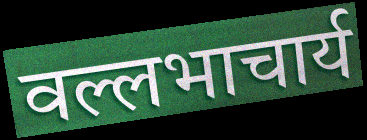
वल्‍लभाचार्य